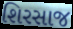
શિરસાજ